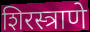
शिरस्त्राणे